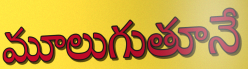
మూలుగుతూనే